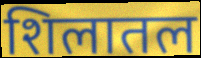
शिलातल